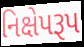
નિક્ષેપરૂપ